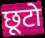
छूटो